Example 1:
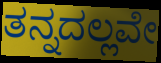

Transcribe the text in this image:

ತನ್ನದಲ್ಲವೇ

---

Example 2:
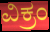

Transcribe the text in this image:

ವಿಕ್ರಂ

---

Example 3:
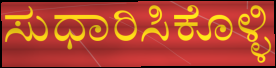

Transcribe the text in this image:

ಸುಧಾರಿಸಿಕೊಳ್ಳಿ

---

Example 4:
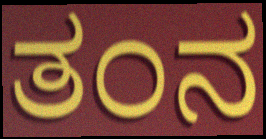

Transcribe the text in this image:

ತಂನ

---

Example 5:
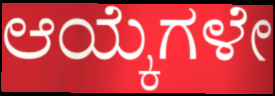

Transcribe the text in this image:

ಆಯ್ಕೆಗಳೇ